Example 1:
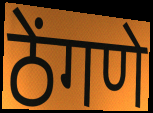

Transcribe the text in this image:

ठेंगणे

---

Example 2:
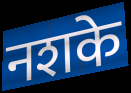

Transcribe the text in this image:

नशके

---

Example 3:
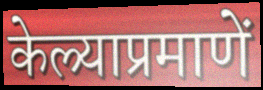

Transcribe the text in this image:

केल्याप्रमाणें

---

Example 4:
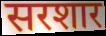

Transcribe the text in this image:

सरशार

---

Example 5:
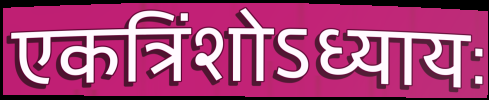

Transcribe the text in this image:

एकत्रिंशोऽध्यायः